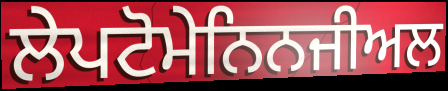
ਲੇਪਟੋਮੇਨਿਨਜੀਅਲ